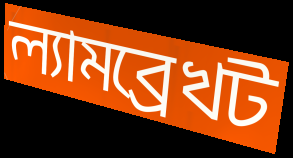
ল্যামব্রেখট